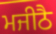
ਮਜੀਠੈ